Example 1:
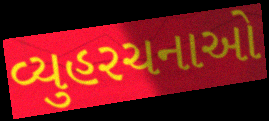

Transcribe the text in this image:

વ્યુહરચનાઓ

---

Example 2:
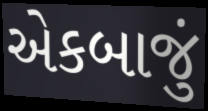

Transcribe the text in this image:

એકબાજું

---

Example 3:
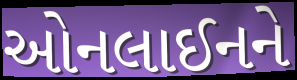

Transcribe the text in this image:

ઓનલાઈનને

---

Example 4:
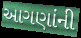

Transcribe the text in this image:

આગણાંની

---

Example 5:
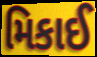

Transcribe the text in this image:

મિકાઈ